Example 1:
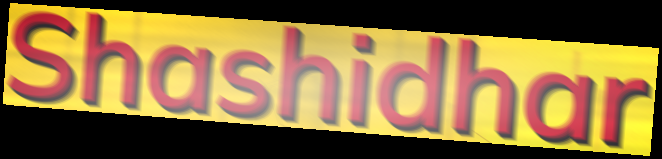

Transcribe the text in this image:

Shashidhar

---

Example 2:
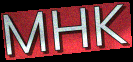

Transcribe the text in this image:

MHK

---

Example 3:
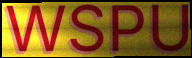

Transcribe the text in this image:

WSPU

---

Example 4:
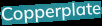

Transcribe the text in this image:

Copperplate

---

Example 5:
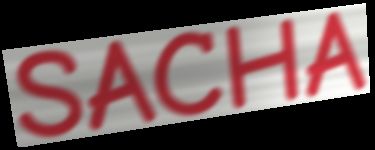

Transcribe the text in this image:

SACHA